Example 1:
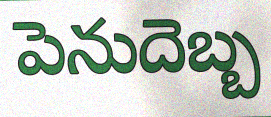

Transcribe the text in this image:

పెనుదెబ్బ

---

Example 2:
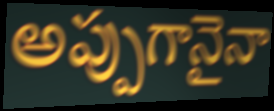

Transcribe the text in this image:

అప్పుగానైనా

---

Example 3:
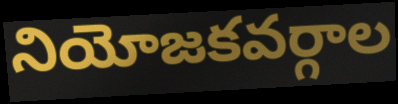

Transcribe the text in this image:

నియోజకవర్గాల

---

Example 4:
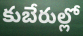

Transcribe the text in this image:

కుబేరుల్లో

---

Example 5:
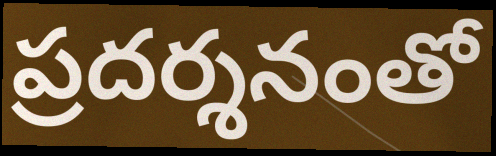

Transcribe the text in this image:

ప్రదర్శనంతో